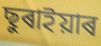
ছুৰাইয়াৰ